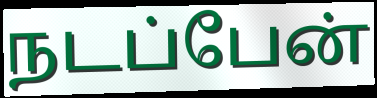
நடப்பேன்